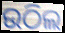
ଉଠିଲ